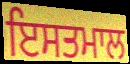
ਇਸਤਮਾਲ